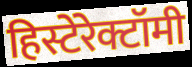
हिस्टेरेक्टॉमी